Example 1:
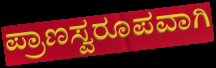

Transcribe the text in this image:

ಪ್ರಾಣಸ್ವರೂಪವಾಗಿ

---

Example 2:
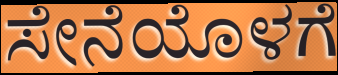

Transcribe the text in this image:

ಸೇನೆಯೊಳಗೆ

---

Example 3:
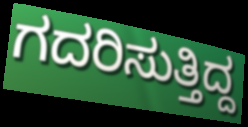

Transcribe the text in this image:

ಗದರಿಸುತ್ತಿದ್ದ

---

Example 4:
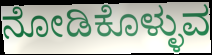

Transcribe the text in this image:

ನೋಡಿಕೊಳ್ಳುವ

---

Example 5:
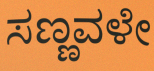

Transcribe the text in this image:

ಸಣ್ಣವಳೇ